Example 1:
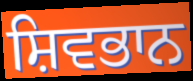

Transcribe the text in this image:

ਸ਼ਿਵਭਾਨ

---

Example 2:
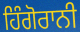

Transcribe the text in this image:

ਹਿੰਗੋਰਾਨੀ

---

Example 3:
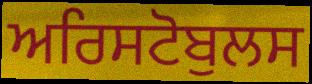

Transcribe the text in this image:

ਅਰਿਸਟੋਬੁਲਸ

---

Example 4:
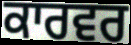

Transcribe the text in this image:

ਕਾਰਵਰ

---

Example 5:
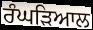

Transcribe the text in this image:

ਰੰਘੜਿਆਲ